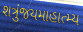
શત્રુંજયમાહાત્મ્ય